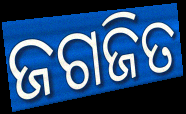
ଜଗଜିତ